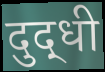
दुद्धी